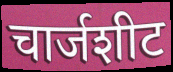
चार्जशीट